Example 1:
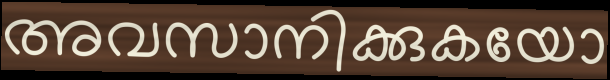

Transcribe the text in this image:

അവസാനിക്കുകയോ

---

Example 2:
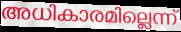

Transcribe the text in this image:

അധികാരമില്ലെന്ന്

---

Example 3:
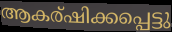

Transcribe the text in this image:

ആകര്ഷിക്കപ്പെട്ടു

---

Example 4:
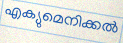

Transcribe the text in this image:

എക്യുമെനിക്കൽ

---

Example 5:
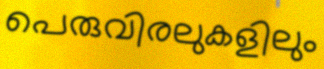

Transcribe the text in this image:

പെരുവിരലുകളിലും